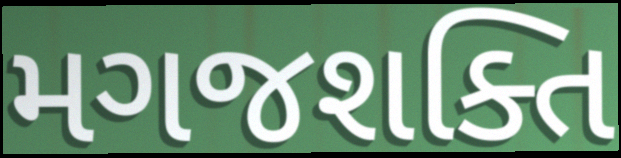
મગજશક્તિ